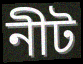
নীট